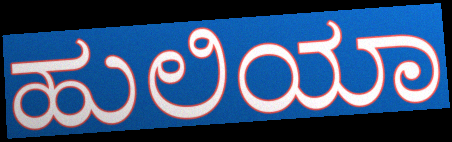
ಹುಲಿಯಾ